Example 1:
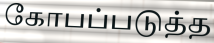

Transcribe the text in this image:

கோபப்படுத்த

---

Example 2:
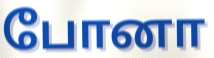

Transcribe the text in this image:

போனா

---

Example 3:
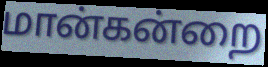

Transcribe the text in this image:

மான்கன்றை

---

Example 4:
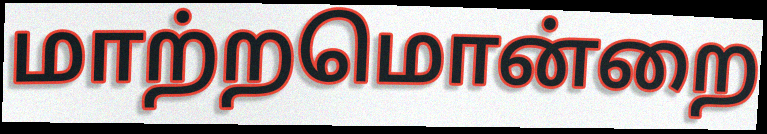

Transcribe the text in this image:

மாற்றமொன்றை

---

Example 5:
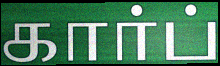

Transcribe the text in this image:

கார்ப்